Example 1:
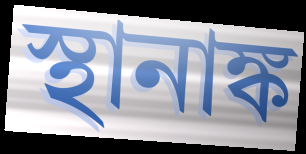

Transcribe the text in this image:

স্থানাঙ্ক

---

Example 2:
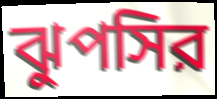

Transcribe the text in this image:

ঝুপসির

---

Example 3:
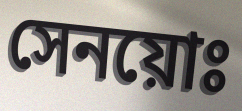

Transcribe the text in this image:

সেনয়োঃ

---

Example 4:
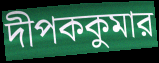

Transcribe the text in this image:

দীপককুমার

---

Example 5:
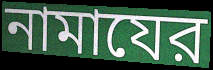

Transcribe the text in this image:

নামাযের